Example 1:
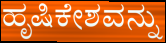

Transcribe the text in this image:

ಹೃಷಿಕೇಶವನ್ನು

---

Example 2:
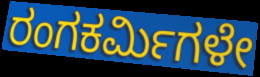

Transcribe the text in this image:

ರಂಗಕರ್ಮಿಗಳೇ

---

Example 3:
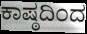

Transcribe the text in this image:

ಕಾಷ್ಠದಿಂದ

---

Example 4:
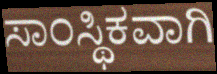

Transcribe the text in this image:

ಸಾಂಸ್ಥಿಕವಾಗಿ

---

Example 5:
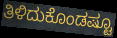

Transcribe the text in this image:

ತಿಳಿದುಕೊಂಡಷ್ಟೂ